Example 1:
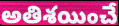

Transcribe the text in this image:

అతిశయించే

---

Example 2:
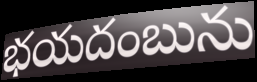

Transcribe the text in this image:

భయదంబును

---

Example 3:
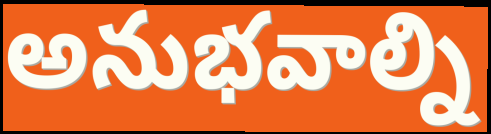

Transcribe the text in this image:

అనుభవాల్ని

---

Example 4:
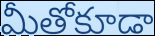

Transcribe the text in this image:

మీతోకూడా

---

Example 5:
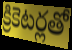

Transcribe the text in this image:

క్రికెటర్లతో